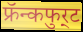
फ्रॅन्कफुर्ट